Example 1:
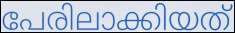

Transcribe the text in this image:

പേരിലാക്കിയത്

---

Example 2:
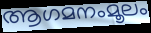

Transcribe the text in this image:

ആഗമനംമൂലം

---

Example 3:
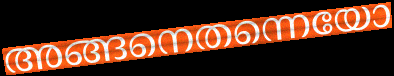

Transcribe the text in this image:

അങ്ങനെതന്നെയോ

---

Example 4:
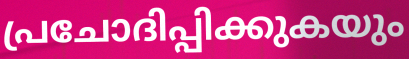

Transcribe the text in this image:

പ്രചോദിപ്പിക്കുകയും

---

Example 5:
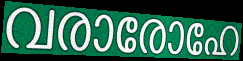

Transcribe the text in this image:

വരാരോഹേ